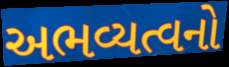
અભવ્યત્વનો